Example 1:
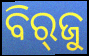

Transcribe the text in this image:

ବିର୍‌ଜୁ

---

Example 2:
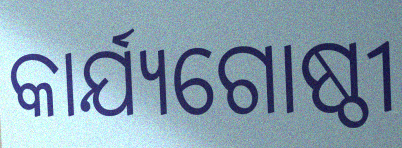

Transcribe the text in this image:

କାର୍ଯ୍ୟଗୋଷ୍ଠୀ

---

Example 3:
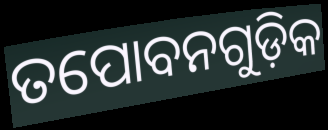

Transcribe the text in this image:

ତପୋବନଗୁଡ଼ିକ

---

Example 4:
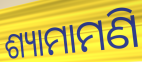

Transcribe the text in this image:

ଶ୍ୟାମାମଣି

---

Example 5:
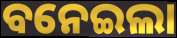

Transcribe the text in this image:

ବନେଇଲା